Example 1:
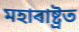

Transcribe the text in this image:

মহাৰাষ্ট্ৰত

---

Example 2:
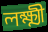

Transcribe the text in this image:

লক্ষ্মী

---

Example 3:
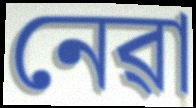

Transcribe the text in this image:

নেৱা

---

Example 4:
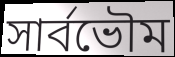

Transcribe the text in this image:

সাৰ্বভৌম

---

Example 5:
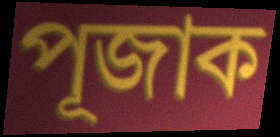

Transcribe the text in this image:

পূজাক